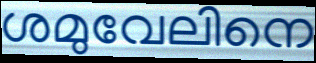
ശമുവേലിനെ